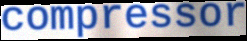
compressor